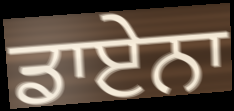
ਡਾਏਨਾ